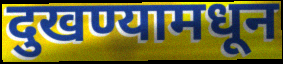
दुखण्यामधून